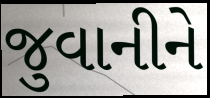
જુવાનીને